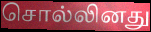
சொல்லினது